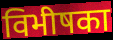
विभीषका